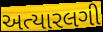
અત્યારલગી